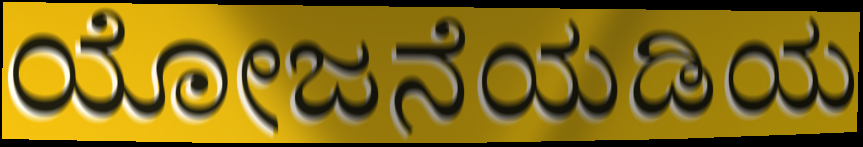
ಯೋಜನೆಯಡಿಯ